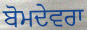
ਬੋਮਦੇਵਰਾ